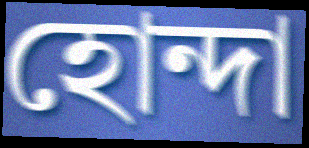
হোন্দা